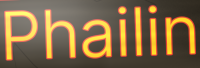
Phailin